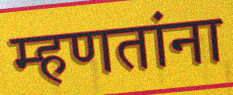
म्हणतांना